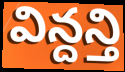
విన్దన్తి